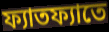
ফ্যাতফ্যাতে